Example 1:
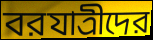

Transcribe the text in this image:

বরযাত্রীদের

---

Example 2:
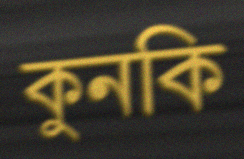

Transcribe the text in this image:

কুনকি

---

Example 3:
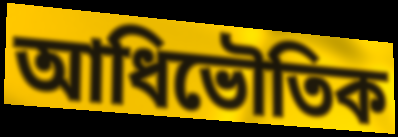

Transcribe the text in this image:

আধিভৌতিক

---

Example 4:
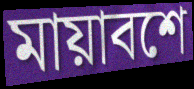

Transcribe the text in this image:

মায়াবশে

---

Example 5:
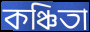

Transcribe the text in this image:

কঞ্চিতা